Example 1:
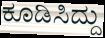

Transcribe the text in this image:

ಕೂಡಿಸಿದ್ದು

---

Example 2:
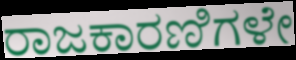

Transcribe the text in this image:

ರಾಜಕಾರಣಿಗಳೇ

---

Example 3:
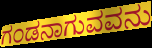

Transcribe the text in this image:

ಗಂಡನಾಗುವವನು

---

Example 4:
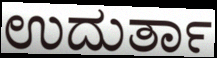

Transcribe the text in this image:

ಉದುರ್ತಾ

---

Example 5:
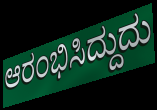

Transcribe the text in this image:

ಆರಂಭಿಸಿದ್ದುದು